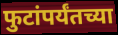
फुटांपर्यंतच्या